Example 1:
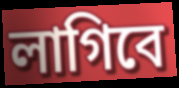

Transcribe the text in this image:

লাগিবে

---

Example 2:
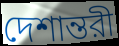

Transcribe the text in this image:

দেশান্তরী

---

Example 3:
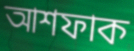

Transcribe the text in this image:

আশফাক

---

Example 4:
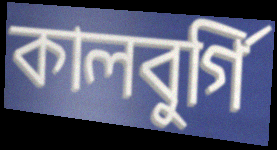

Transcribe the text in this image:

কালবুর্গি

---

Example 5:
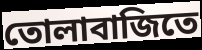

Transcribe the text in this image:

তোলাবাজিতে